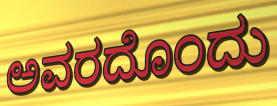
ಅವರದೊಂದು